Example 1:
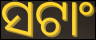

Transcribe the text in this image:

ସଟାଂ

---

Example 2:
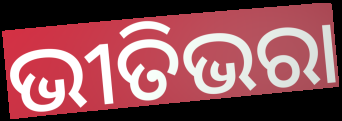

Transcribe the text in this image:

ଭୀତିଭରା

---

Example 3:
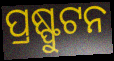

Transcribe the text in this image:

ପ୍ରଷ୍ଫୁଟନ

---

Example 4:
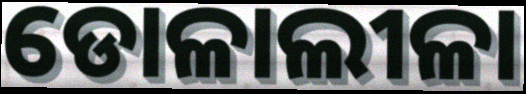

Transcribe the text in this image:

ଡୋଳାଲୀଳା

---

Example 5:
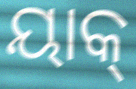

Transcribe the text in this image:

ୟାକ୍